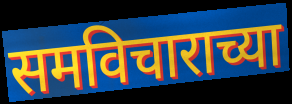
समविचाराच्या